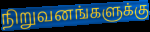
நிறுவனங்களுக்கு